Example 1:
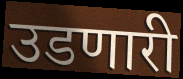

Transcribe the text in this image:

उडणारी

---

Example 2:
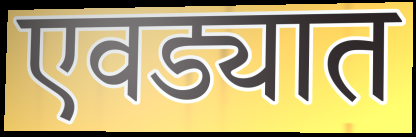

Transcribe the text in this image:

एवड्यात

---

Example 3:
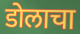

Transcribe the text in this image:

डोलाचा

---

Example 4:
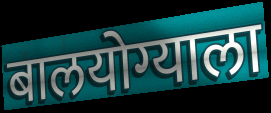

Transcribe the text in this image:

बालयोग्याला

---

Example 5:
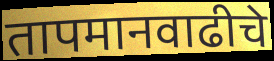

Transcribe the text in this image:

तापमानवाढीचे